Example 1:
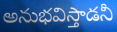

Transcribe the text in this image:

అనుభవిస్తాడనీ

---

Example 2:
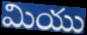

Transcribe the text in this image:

మియు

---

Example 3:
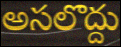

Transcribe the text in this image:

అసలొద్దు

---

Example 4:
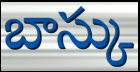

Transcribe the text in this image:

బాస్కు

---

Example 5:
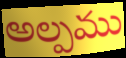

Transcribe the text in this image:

అల్పము